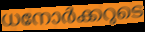
ധനോർക്കറുടെ